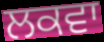
ਲਕਵਾ